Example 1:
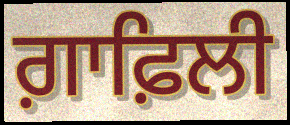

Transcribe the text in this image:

ਗ਼ਾਫ਼ਿਲੀ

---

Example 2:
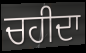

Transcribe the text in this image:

ਚਹੀਦਾ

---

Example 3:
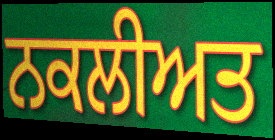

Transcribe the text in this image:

ਨਕਲੀਅਤ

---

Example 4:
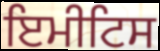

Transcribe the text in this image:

ਇਮੀਟਿਸ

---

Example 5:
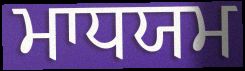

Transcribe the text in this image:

ਮਾਧਯਮ